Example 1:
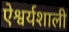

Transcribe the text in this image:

ऐश्वर्यशाली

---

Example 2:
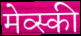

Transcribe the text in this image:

मेव्स्की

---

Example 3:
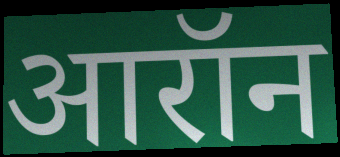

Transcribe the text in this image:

आरॉन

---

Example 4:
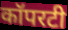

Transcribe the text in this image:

कॉपरटी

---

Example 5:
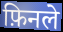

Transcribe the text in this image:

फ़िनले